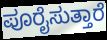
ಪೂರೈಸುತ್ತಾರೆ